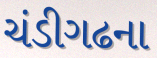
ચંડીગઢના